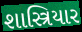
શાસ્ત્રિયાર